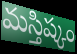
మస్తిష్కం